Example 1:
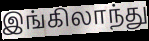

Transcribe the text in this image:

இங்கிலாந்து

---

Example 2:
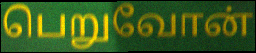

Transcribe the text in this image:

பெறுவோன்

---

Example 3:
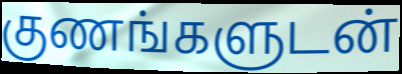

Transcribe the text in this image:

குணங்களுடன்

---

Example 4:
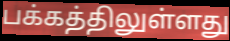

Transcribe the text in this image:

பக்கத்திலுள்ளது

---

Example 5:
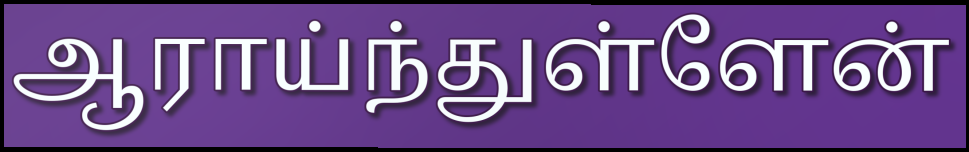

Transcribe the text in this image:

ஆராய்ந்துள்ளேன்